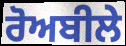
ਰੋਅਬੀਲੇ